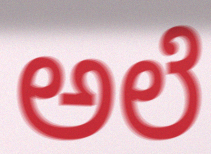
ಅಲೆ